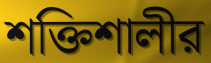
শক্তিশালীর